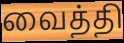
வைத்தி